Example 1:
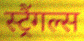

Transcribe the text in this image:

स्ट्रैंगल्स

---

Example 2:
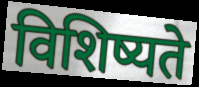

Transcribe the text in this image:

विशिष्यते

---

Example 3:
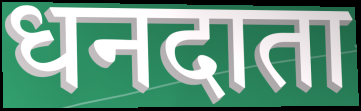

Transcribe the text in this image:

धनदाता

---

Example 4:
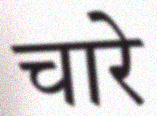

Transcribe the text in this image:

चारे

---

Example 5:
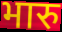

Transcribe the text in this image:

भारु